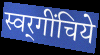
स्वर्गींचिये